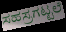
ಸಹಸ್ರಗಟ್ಟಲೆ